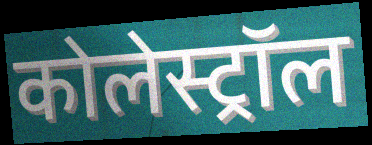
कोलेस्ट्रॉल